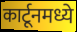
कार्टूनमध्ये